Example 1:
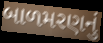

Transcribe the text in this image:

બાળમરણનું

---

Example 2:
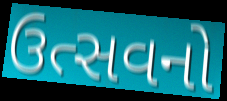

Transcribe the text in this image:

ઉત્સવનો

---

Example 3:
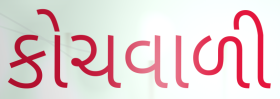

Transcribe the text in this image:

કોચવાળી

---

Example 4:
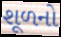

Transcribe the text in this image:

શૂળનો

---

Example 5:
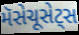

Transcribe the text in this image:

મૅસેચૂસેટ્સ